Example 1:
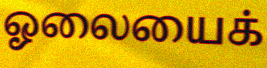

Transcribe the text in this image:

ஓலையைக்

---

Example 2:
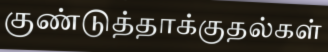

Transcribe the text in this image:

குண்டுத்தாக்குதல்கள்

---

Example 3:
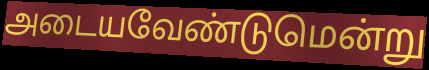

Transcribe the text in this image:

அடையவேண்டுமென்று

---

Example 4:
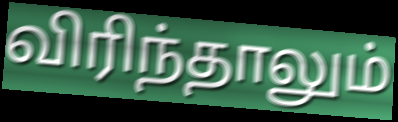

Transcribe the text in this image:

விரிந்தாலும்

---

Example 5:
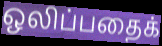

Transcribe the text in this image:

ஒலிப்பதைக்